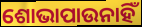
ଶୋଭାପାଉନାହିଁ